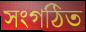
সংগঠিত